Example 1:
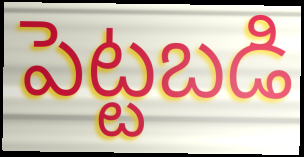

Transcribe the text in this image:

పెట్టబడి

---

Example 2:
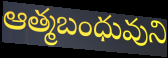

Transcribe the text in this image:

ఆత్మబంధువుని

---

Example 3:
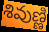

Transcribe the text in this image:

శివుణ్ణి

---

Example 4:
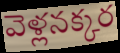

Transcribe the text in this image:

వెళ్లనక్కర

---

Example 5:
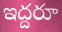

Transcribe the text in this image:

ఇద్దరూ